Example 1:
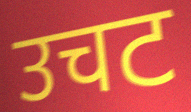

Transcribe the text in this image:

उचट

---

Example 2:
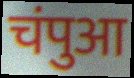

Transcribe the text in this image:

चंपुआ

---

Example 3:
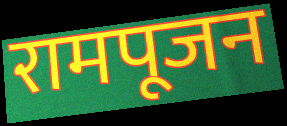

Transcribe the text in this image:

रामपूजन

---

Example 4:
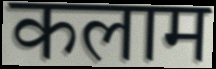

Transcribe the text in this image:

कलाम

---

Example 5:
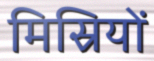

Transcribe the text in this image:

मिस्रियों